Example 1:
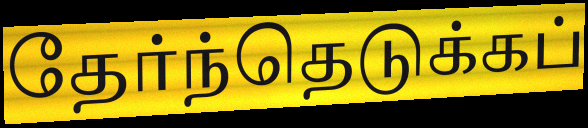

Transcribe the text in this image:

தேர்ந்தெடுக்கப்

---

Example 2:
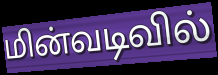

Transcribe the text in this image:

மின்வடிவில்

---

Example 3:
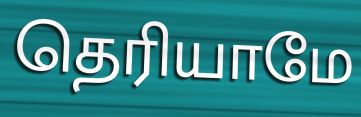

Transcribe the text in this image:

தெரியாமே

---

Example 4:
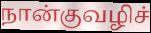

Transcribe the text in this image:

நான்குவழிச்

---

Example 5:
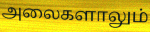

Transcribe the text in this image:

அலைகளாலும்